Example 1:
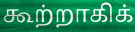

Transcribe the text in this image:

கூற்றாகிக்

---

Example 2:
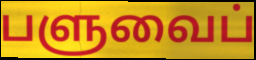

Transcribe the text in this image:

பளுவைப்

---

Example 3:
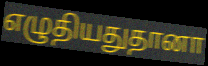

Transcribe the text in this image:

எழுதியதுதானா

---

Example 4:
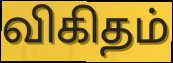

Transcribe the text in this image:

விகிதம்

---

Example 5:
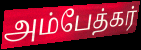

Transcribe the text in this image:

அம்பேத்கர்